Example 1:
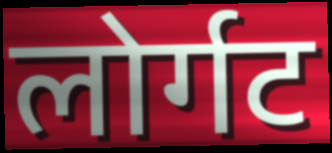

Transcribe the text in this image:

लोर्गट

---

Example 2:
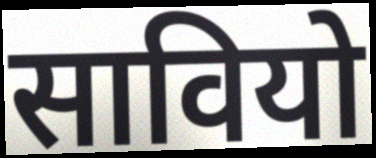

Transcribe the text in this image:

सावियो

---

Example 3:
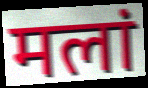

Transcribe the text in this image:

मलां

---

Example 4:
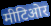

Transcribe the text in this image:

मीटिओर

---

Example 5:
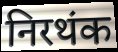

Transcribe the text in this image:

निरथंक